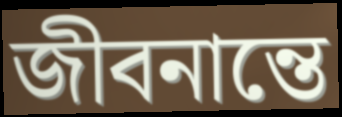
জীবনান্তে